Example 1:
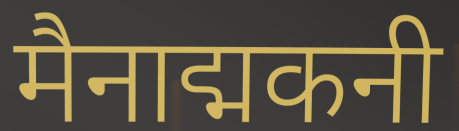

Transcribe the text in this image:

मैनाद्मकनी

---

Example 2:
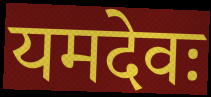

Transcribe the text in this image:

यमदेवः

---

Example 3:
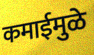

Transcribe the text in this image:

कमाईमुळे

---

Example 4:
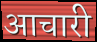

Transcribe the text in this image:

आचारी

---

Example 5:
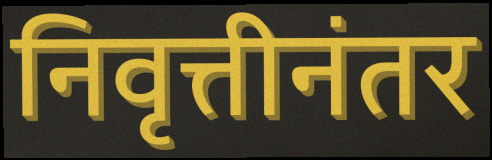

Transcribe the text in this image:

निवृत्तीनंतर